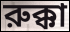
রুক্কা